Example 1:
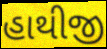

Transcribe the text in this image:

હાથીજી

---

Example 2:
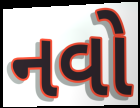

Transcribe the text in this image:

નવો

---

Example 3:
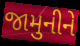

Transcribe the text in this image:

જામુનીને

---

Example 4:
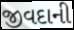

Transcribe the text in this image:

જીવદાની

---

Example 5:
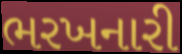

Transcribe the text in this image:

ભરખનારી